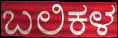
ಬಲಿಕಳ